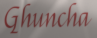
Ghuncha